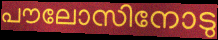
പൗലോസിനോടു